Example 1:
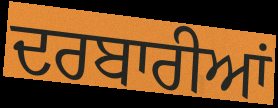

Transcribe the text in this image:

ਦਰਬਾਰੀਆਂ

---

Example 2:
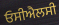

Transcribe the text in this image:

ਓਸੀਐਲਸੀ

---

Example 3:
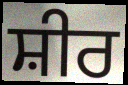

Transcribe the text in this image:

ਸ਼ੀਰ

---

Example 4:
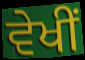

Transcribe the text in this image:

ਵੇਖੀਂ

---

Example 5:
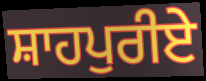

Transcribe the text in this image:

ਸ਼ਾਹਪੁਰੀਏ